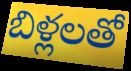
బిళ్లలతో